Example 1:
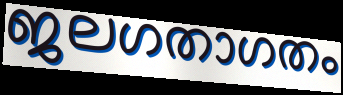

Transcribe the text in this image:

ജലഗതാഗതം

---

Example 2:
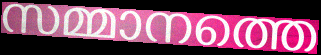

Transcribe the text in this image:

സമ്മാനത്തെ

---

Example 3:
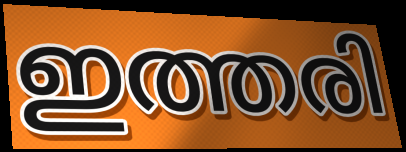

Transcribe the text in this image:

ഇത്തരി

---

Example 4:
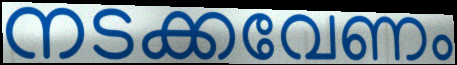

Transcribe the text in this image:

നടക്കവേണം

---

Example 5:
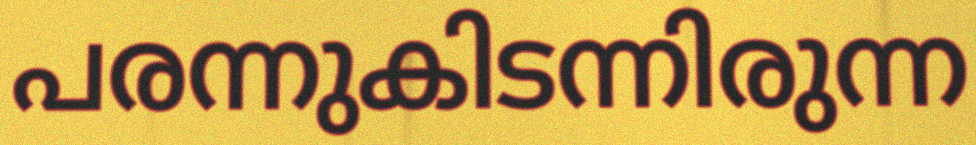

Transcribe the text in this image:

പരന്നുകിടന്നിരുന്ന